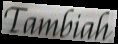
Tambiah